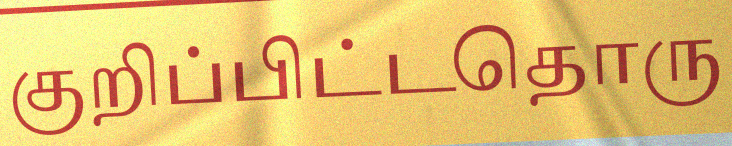
குறிப்பிட்டதொரு